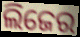
ଲିଜେର